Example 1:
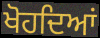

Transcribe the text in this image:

ਖੋਹਦਿਆਂ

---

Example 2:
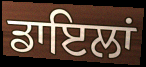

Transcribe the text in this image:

ਡਾਇਲਾਂ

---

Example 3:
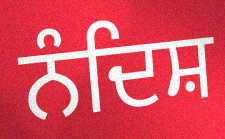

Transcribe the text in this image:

ਨੰਦਿਸ਼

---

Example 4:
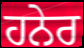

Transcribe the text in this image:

ਹਨੇਰ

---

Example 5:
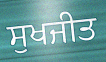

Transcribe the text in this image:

ਸੁਖਜੀਤ